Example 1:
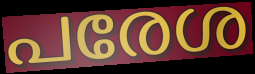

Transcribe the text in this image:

പരേശ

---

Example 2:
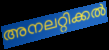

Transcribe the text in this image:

അനലറ്റിക്കൽ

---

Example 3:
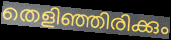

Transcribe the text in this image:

തെളിഞ്ഞിരിക്കും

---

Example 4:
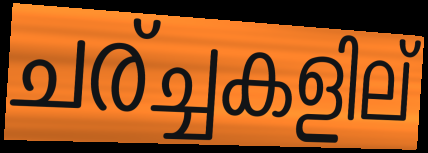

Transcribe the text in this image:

ചര്ച്ചകളില്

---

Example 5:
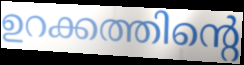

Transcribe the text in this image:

ഉറക്കത്തിന്റെ